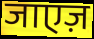
जाएज़